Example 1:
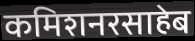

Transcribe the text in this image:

कमिशनरसाहेब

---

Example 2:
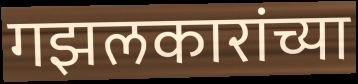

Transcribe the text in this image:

गझलकारांच्या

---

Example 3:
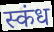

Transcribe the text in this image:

स्कंध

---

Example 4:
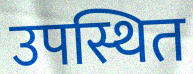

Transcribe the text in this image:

उपस्थित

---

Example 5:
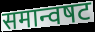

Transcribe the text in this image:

समान्वषट